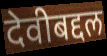
देवीबद्दल